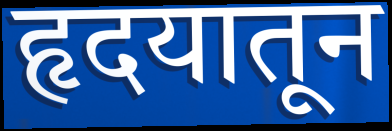
हृदयातून